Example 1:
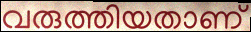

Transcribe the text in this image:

വരുത്തിയതാണ്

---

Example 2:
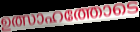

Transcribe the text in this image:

ഉത്സാഹത്തോടെ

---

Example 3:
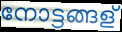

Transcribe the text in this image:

നോട്ടങ്ങള്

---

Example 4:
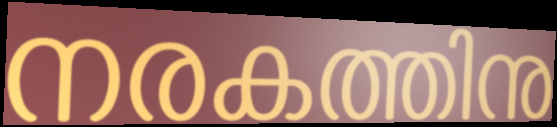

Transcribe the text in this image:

നരകത്തിനു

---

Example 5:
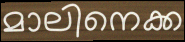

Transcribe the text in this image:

മാലിനെക്ക